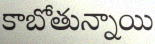
కాబోతున్నాయి